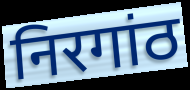
निरगांठ